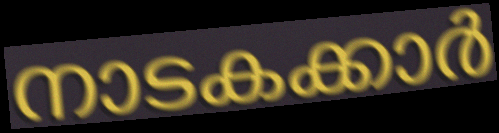
നാടകക്കാർ